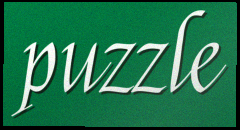
puzzle